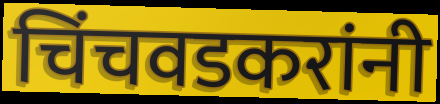
चिंचवडकरांनी